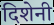
दिशेनी